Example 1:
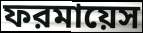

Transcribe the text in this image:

ফরমায়েস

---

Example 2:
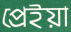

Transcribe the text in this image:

প্রেইয়া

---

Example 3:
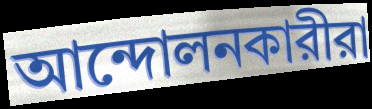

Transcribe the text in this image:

আন্দোলনকারীরা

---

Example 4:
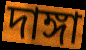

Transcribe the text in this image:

দাঙ্গা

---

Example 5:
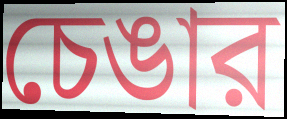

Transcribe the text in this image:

চেঙার